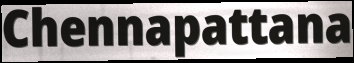
Chennapattana